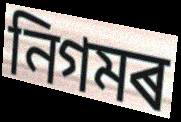
নিগমৰ